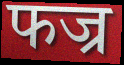
फज्र